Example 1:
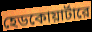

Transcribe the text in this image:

হেডকোয়ার্টারে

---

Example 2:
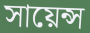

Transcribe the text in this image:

সায়েন্স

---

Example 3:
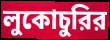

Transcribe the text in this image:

লুকোচুরির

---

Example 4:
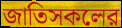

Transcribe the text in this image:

জাতিসকলের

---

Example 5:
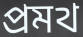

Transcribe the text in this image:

প্রমথ